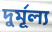
দুর্মূল্য